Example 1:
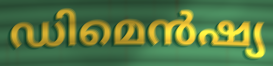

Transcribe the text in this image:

ഡിമെൻഷ്യ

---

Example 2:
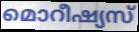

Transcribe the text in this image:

മൊറീഷ്യസ്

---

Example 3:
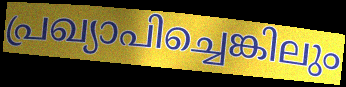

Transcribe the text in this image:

പ്രഖ്യാപിച്ചെങ്കിലും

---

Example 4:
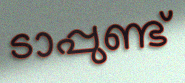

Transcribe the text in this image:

ടാപ്പുണ്ട്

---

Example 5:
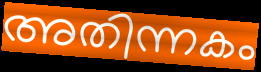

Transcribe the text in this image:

അതിന്നകം